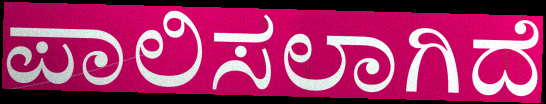
ಪಾಲಿಸಲಾಗಿದೆ